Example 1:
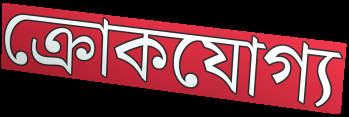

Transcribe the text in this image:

ক্রোকযোগ্য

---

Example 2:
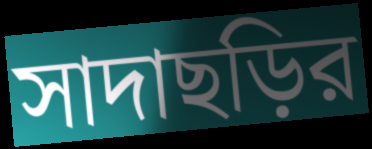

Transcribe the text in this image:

সাদাছড়ির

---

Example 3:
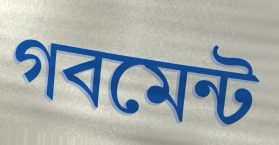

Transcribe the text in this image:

গবমেন্ট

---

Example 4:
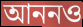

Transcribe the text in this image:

আননও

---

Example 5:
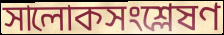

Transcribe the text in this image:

সালোকসংশ্লেষণ